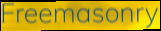
Freemasonry